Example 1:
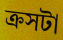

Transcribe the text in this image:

ক্রসটা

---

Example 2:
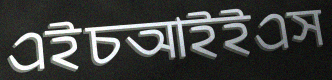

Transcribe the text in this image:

এইচআইইএস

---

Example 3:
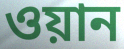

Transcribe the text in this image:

ওয়ান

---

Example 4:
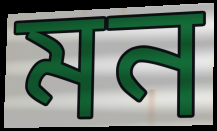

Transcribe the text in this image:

মন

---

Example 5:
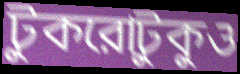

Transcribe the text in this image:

টুকরোটুকুও